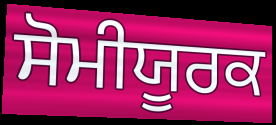
ਸੋਮੀਯੂਰਕ